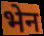
भेन